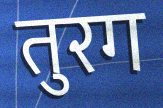
तुरग